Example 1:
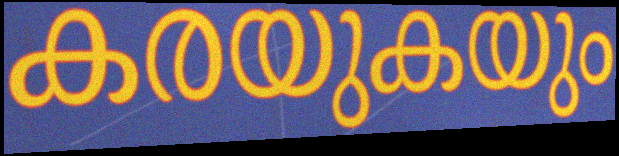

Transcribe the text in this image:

കരയുകയും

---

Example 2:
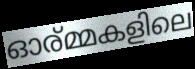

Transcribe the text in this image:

ഓര്മ്മകളിലെ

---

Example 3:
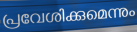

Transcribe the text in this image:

പ്രവേശിക്കുമെന്നും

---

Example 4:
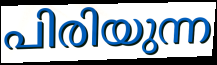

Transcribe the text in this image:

പിരിയുന്ന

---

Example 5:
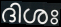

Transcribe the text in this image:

ദിശഃ